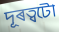
দূৰত্বটো